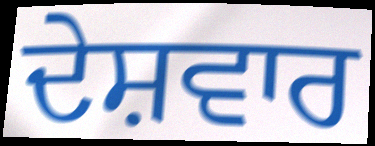
ਦੇਸ਼ਵਾਰ